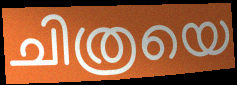
ചിത്രയെ